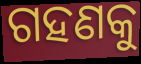
ଗହଣକୁ